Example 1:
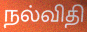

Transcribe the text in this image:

நல்விதி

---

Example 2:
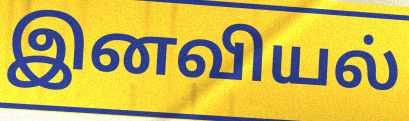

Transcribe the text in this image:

இனவியல்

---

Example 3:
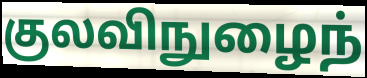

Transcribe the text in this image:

குலவிநுழைந்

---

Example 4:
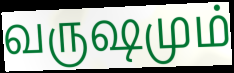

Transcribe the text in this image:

வருஷமும்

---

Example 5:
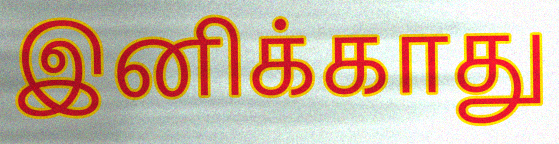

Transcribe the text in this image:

இனிக்காது